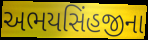
અભયસિંહજીના